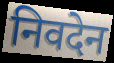
निवदेन